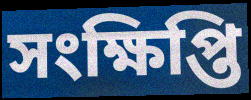
সংক্ষিপ্তি